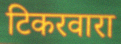
टिकरवारा